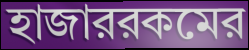
হাজাররকমের